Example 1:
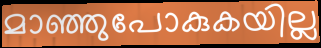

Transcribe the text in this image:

മാഞ്ഞുപോകുകയില്ല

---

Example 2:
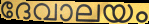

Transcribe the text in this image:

ദേവാലയം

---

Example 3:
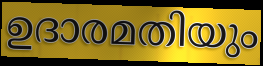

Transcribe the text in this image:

ഉദാരമതിയും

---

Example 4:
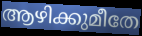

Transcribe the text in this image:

ആഴിക്കുമീതേ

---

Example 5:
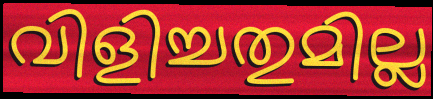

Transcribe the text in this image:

വിളിച്ചതുമില്ല